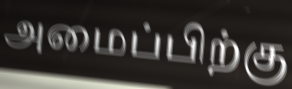
அமைப்பிற்கு